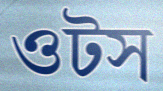
ওটস